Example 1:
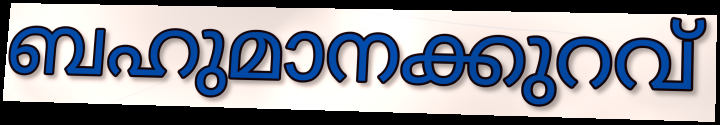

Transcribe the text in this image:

ബഹുമാനക്കുറവ്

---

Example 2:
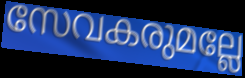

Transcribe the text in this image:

സേവകരുമല്ലേ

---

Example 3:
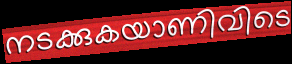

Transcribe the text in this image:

നടക്കുകയാണിവിടെ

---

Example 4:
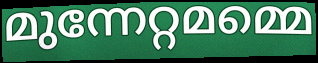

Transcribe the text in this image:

മുന്നേറ്റമമ്മെ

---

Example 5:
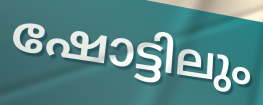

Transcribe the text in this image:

ഷോട്ടിലും